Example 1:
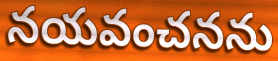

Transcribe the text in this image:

నయవంచనను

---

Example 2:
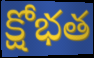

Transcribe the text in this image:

క్షోభత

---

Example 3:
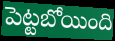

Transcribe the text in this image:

పెట్టబోయింది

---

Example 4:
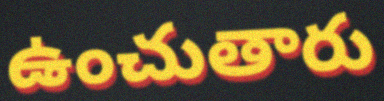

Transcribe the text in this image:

ఉంచుతారు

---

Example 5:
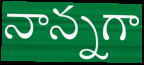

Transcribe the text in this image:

నాన్నగా